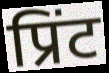
प्रिंट